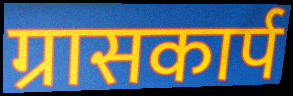
ग्रासकार्प